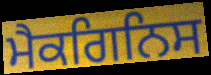
ਮੈਕਗਿਨਿਸ